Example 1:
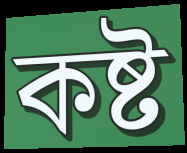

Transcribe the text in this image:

কষ্ট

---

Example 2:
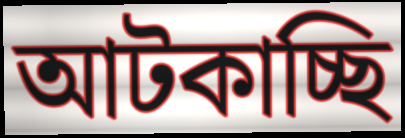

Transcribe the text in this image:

আটকাচ্ছি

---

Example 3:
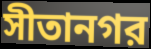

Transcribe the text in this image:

সীতানগর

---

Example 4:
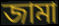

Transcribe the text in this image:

জামা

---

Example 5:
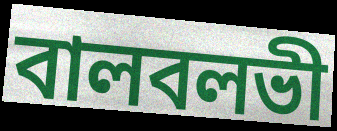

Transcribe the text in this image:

বালবলভী